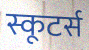
स्कूटर्स